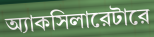
অ্যাকসিলারেটারে